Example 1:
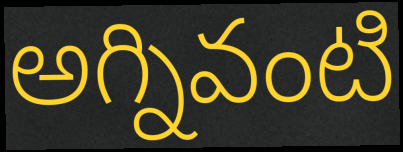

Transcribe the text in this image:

అగ్నివంటి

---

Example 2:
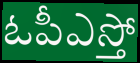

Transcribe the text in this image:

ఓపీఎస్తో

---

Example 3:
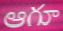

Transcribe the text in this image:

ఆగూ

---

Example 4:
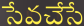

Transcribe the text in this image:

సేవచేసే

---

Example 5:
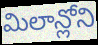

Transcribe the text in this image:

మిలాన్లోని